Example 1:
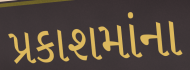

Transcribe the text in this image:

પ્રકાશમાંના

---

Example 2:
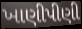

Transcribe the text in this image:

ખાણીપીણી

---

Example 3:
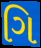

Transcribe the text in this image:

ગિ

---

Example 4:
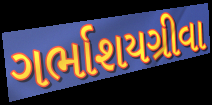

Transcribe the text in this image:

ગર્ભાશયગ્રીવા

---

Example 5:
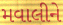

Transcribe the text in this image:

મવાલીને